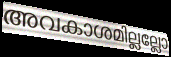
അവകാശമില്ലല്ലോ